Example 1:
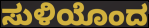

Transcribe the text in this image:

ಸುಳಿಯೊಂದ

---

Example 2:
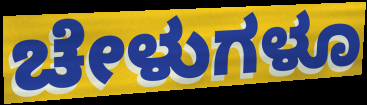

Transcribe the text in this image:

ಚೇಳುಗಳೂ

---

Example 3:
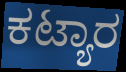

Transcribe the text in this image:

ಕಟ್ಯಾರ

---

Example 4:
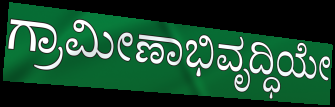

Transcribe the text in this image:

ಗ್ರಾಮೀಣಾಭಿವೃದ್ಧಿಯೇ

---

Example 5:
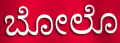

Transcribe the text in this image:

ಬೋಲೊ